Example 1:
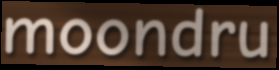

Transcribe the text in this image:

moondru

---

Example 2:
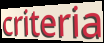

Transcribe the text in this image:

criteria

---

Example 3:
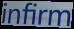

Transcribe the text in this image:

infirm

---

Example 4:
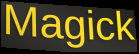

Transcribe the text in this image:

Magick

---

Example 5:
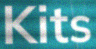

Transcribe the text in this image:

Kits